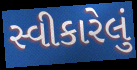
સ્વીકારેલું